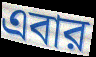
এবার